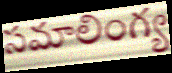
సమాలింగ్య